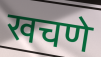
खचणे